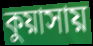
কুয়াসায়